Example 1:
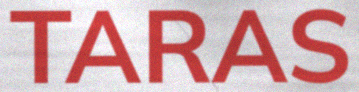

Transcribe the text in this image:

TARAS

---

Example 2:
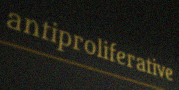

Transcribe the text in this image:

antiproliferative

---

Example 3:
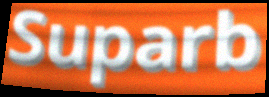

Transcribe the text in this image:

Suparb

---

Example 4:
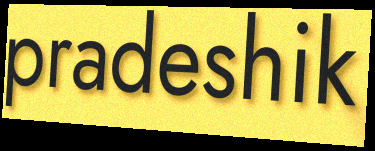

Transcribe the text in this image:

pradeshik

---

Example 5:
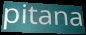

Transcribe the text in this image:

pitana